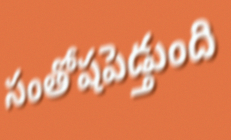
సంతోషపెడ్తుంది